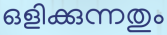
ഒളിക്കുന്നതും